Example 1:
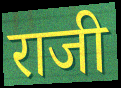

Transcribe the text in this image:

राजी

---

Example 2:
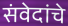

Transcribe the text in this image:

संवेदांचे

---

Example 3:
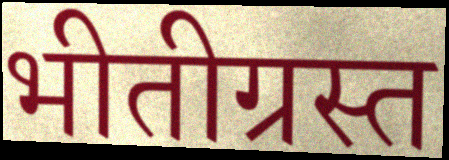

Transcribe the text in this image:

भीतीग्रस्त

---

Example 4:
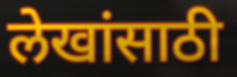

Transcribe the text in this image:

लेखांसाठी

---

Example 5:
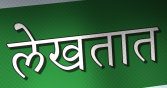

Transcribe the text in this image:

लेखतात